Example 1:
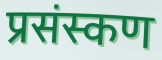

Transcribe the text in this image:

प्रसंस्कण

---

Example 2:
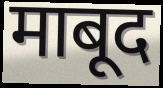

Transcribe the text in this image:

माबूद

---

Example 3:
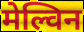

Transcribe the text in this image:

मेल्विन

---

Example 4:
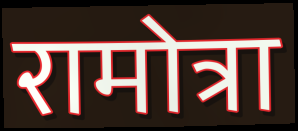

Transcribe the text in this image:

रामोत्रा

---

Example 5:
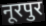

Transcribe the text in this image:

नूरपुर